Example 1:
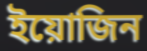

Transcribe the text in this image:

ইয়োজিন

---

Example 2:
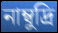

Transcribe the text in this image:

নাম্বুদ্রি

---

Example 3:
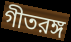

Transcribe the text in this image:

গীতরঙ্গ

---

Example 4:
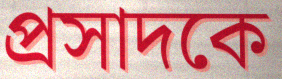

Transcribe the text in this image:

প্রসাদকে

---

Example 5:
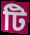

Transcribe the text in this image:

টি